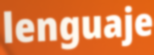
lenguaje